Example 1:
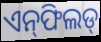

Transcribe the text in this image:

ଏନ୍‌ଫିଲଡ୍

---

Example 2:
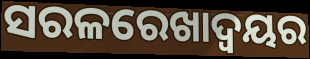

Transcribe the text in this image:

ସରଳରେଖାଦ୍ବୟର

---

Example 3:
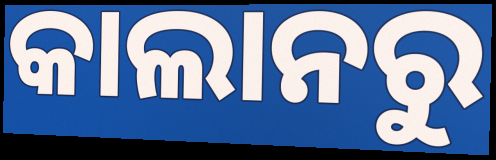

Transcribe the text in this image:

କାଲାନରୁ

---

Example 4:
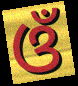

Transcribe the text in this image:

ଓଁ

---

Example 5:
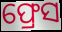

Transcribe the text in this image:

ଫ୍ରେସ